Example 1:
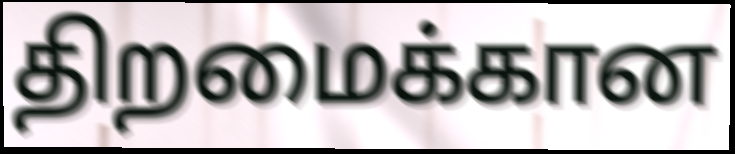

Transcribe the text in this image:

திறமைக்கான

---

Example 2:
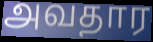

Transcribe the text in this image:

அவதார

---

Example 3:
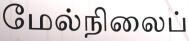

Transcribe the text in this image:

மேல்நிலைப்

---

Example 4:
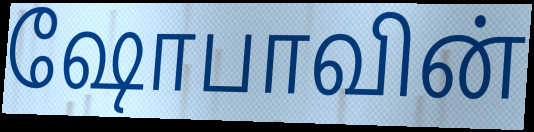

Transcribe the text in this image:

ஷோபாவின்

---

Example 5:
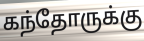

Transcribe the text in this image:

கந்தோருக்கு